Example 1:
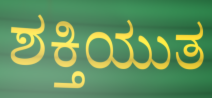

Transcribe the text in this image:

ಶಕ್ತಿಯುತ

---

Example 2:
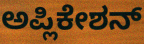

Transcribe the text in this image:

ಅಪ್ಲಿಕೇಶನ್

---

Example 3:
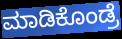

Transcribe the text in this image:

ಮಾಡಿಕೊಂಡ್ರೆ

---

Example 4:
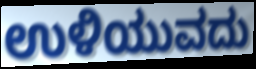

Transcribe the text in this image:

ಉಳಿಯುವದು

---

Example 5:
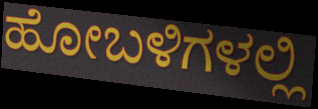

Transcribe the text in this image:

ಹೋಬಳಿಗಳಲ್ಲಿ